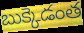
బుక్కెడంత